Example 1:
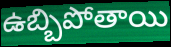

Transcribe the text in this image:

ఉబ్బిపోతాయి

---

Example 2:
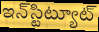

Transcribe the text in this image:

ఇన్‌స్టిట్యూట్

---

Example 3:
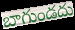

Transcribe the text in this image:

బాగుండదు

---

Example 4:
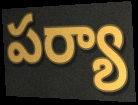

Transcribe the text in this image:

పర్యా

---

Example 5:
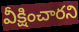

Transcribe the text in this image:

వీక్షించారని